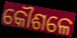
କୌଶଳେ